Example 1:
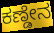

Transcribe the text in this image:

ಕಣ್ಡೇನ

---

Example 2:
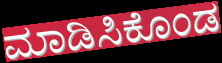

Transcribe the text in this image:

ಮಾಡಿಸಿಕೊಂಡ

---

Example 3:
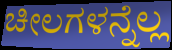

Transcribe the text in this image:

ಚೀಲಗಳನ್ನೆಲ್ಲ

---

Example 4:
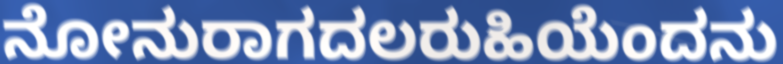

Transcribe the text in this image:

ನೋನುರಾಗದಲರುಹಿಯೆಂದನು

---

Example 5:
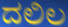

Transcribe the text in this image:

ದಲಿಲ